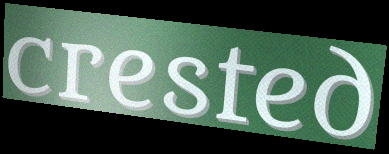
crested